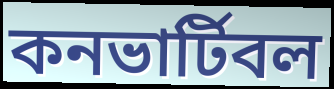
কনভার্টিবল